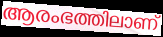
ആരംഭത്തിലാണ്